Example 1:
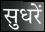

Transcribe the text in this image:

सुधरें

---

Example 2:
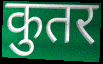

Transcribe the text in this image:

कुतर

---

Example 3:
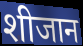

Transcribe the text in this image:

शीजान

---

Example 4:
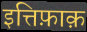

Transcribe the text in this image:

इत्तिफ़ाक़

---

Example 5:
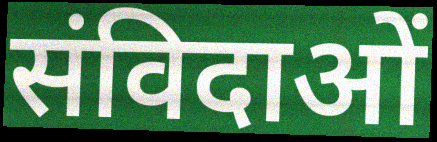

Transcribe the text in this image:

संविदाओं